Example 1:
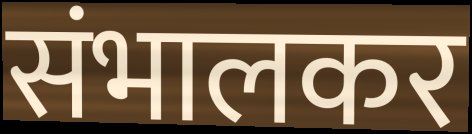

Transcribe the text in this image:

संभालकर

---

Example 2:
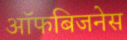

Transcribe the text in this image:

ऑफबिजनेस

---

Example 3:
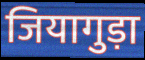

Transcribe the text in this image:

जियागुड़ा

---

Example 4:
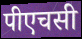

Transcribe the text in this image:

पीएचसी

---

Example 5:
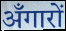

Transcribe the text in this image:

अँगारों